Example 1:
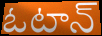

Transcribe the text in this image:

ఓటాన్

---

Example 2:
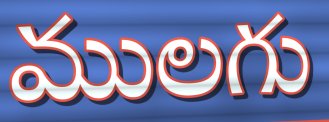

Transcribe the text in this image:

ములగు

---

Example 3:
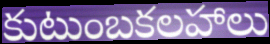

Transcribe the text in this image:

కుటుంబకలహాలు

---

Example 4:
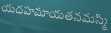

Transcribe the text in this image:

యదహమాయతనమస్మి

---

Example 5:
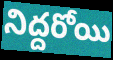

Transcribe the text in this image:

నిద్దరోయి